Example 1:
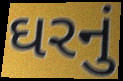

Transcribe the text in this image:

ઘરનું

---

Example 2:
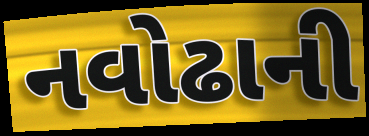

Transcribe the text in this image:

નવોઢાની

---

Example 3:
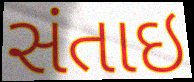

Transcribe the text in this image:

સંતાઇ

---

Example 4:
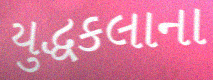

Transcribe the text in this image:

યુદ્ધકલાના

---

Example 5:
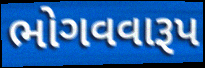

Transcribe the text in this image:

ભોગવવારૂપ